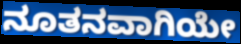
ನೂತನವಾಗಿಯೇ